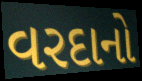
વરદાનો